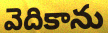
వెదికాను